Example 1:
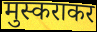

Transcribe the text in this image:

मुस्कराकर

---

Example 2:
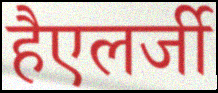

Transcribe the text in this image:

हैएलर्जी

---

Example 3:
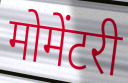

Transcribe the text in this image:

मोमेंटरी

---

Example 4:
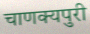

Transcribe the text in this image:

चाणक्यपुरी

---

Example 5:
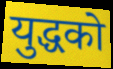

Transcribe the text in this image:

युद्धको